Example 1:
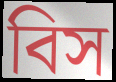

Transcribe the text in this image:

বিস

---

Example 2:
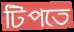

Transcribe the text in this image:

টিপতে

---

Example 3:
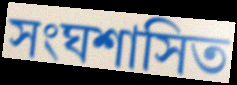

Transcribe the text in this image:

সংঘশাসিত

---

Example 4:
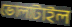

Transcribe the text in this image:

ভোলাটাইল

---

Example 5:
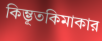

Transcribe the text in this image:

কিম্ভূতকিমাকার